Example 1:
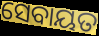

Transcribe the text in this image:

ସେବାୟତ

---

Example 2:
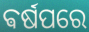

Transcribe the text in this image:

ଵର୍ଷପରେ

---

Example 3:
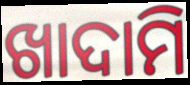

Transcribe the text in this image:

ଖାଦାମି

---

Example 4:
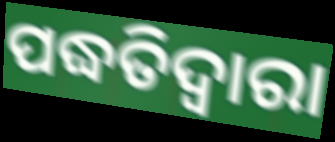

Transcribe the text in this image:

ପଦ୍ଧତିଦ୍ଵାରା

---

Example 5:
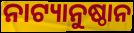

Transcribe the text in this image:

ନାଟ୍ୟାନୁଷ୍ଠାନ